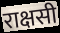
राक्षसी